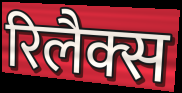
रिलैक्‍स